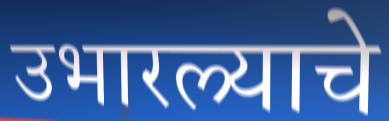
उभारल्याचे